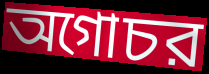
অগোচর